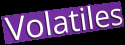
Volatiles